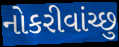
નોકરીવાંચ્છુ